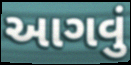
આગવું